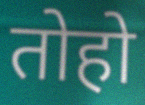
तोहो